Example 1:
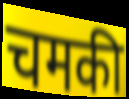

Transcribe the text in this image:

चमकी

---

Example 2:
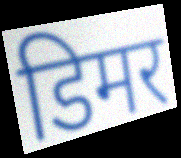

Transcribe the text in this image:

डिमर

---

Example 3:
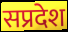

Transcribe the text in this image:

सप्रदेश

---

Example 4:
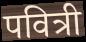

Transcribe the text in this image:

पवित्री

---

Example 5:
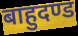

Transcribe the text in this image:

बाहुदण्ड